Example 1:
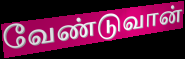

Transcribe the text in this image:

வேண்டுவான்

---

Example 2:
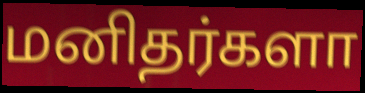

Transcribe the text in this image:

மனிதர்களா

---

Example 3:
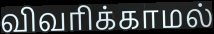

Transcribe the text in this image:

விவரிக்காமல்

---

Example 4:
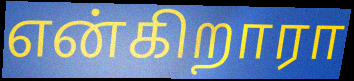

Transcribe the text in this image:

என்கிறாரா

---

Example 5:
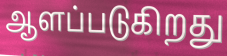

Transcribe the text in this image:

ஆளப்படுகிறது